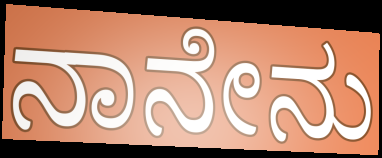
ನಾನೇನು